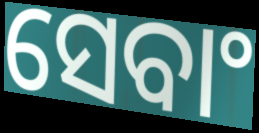
ସେବାଂ